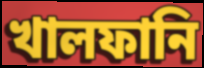
খালফানি